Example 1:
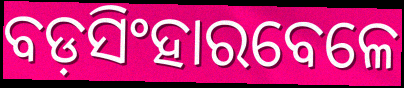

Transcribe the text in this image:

ବଡ଼ସିଂହାରବେଳେ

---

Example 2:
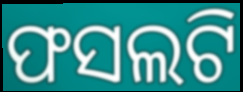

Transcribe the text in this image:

ଫସଲଟି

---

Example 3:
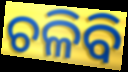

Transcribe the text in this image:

ଚଳିବି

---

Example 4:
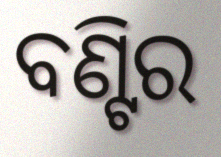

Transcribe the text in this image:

ବଣ୍ଟିର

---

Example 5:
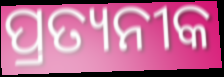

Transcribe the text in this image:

ପ୍ରତ୍ୟନୀକ